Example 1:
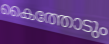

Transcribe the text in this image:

കൈത്തോടും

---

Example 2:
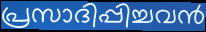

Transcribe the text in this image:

പ്രസാദിപ്പിച്ചവൻ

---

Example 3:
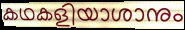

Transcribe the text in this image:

കഥകളിയാശാനും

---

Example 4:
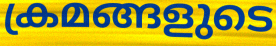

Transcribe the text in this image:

ക്രമങ്ങളുടെ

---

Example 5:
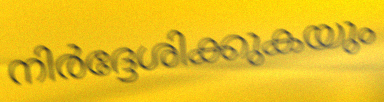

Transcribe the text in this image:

നിർദ്ദേശിക്കുകയും